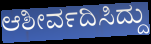
ಆಶೀರ್ವದಿಸಿದ್ದು